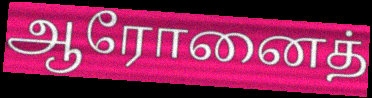
ஆரோனைத்